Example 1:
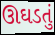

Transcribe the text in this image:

ઊઘડતું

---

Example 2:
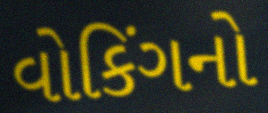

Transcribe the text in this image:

વોકિંગનો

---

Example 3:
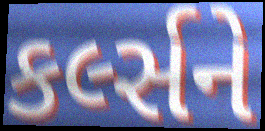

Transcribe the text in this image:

કર્લ્સને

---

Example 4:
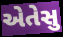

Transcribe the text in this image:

એતેસુ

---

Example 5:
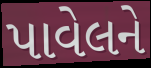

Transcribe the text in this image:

પાવેલને